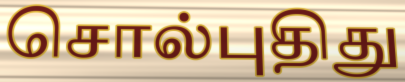
சொல்புதிது